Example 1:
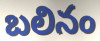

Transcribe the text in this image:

బలినం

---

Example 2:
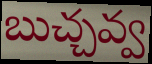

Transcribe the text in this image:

బుచ్చవ్వ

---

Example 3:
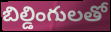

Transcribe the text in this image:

బిల్డింగులతో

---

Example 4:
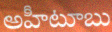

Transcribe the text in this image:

అహీటూబు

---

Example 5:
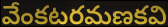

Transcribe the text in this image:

వేంకటరమణకవి